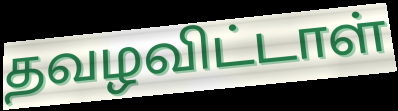
தவழவிட்டாள்